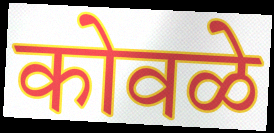
कोवळे